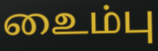
உைம்பு